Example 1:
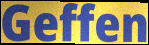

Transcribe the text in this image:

Geffen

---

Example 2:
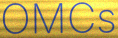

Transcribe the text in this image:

OMCs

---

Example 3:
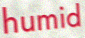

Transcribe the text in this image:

humid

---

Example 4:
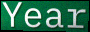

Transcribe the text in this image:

Year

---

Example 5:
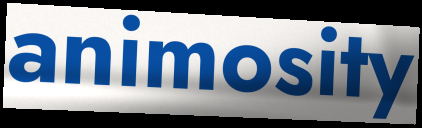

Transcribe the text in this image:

animosity